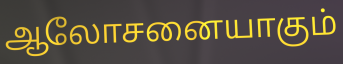
ஆலோசனையாகும்